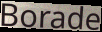
Borade